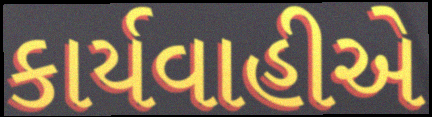
કાર્યવાહીએ